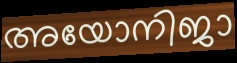
അയോനിജാ